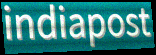
indiapost